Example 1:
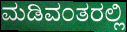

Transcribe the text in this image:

ಮಡಿವಂತರಲ್ಲಿ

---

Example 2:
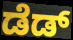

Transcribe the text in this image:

ಡೆಡ್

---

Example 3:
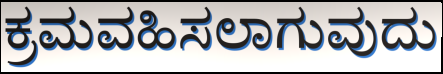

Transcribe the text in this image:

ಕ್ರಮವಹಿಸಲಾಗುವುದು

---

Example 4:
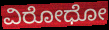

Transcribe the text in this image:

ವಿರೋಧೋ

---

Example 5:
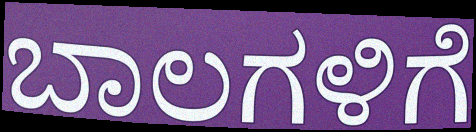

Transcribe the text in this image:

ಬಾಲಗಳಿಗೆ